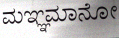
ಮಞ್ಞಮಾನೋ